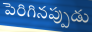
పెరిగినప్పుడు